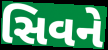
સિવને